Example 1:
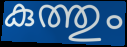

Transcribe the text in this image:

കുത്തും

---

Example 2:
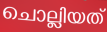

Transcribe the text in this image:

ചൊല്ലിയത്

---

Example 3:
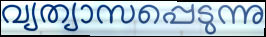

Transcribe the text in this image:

വ്യത്യാസപ്പെടുന്നു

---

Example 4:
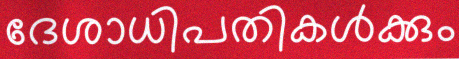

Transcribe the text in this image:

ദേശാധിപതികൾക്കും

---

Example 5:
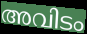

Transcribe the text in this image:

അവിടം